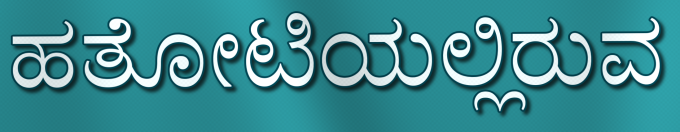
ಹತೋಟಿಯಲ್ಲಿರುವ